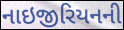
નાઇજીરિયનની